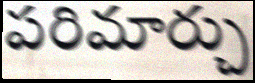
పరిమార్చు